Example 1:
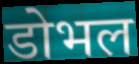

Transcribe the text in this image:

डोभल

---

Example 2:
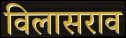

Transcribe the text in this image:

विलासराव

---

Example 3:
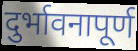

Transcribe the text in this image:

दुर्भावनापूर्ण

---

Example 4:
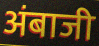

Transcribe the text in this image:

अंबाजी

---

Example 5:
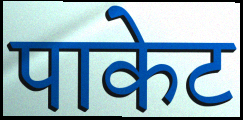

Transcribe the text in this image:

पाकेट